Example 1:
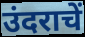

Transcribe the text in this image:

उंदराचें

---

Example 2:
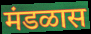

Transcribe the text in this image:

मंडळास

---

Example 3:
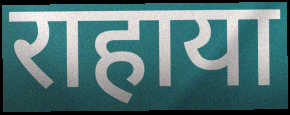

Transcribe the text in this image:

राहाया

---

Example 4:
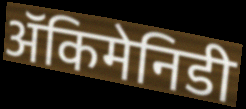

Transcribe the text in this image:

ॲकिमेनिडी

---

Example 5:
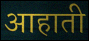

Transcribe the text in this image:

आहाती